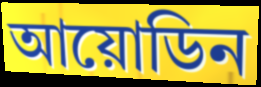
আয়োডিন